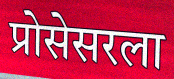
प्रोसेसरला